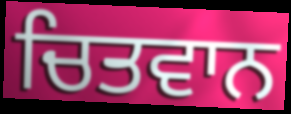
ਚਿਤਵਾਨ